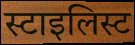
स्टाइलिस्ट